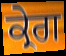
ਕ੍ਰੇਗ